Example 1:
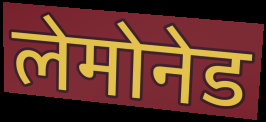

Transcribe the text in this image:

लेमोनेड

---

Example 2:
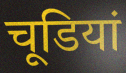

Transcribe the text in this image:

चूडियां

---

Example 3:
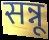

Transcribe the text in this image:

सन्नू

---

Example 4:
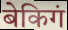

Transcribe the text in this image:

बेकिगं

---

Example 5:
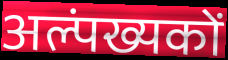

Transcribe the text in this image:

अल्पंख्यकों